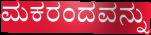
ಮಕರಂದವನ್ನು